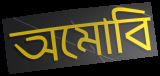
অমোবি